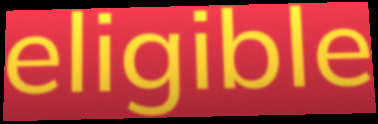
eligible